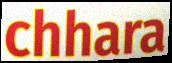
chhara